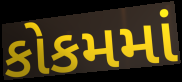
કોકમમાં